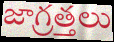
జాగ్రత్తలు